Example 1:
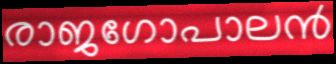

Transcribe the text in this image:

രാജഗോപാലൻ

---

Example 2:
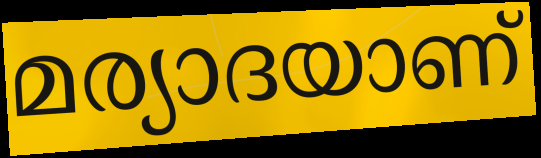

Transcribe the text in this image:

മര്യാദയാണ്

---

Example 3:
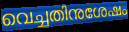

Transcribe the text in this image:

വെച്ചതിനുശേഷം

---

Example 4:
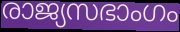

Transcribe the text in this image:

രാജ്യസഭാംഗം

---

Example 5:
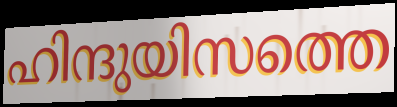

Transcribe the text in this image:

ഹിന്ദുയിസത്തെ